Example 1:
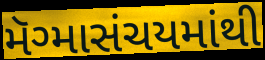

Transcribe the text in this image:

મૅગ્માસંચયમાંથી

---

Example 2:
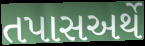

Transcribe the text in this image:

તપાસઅર્થે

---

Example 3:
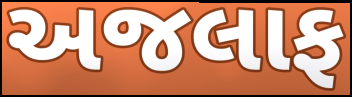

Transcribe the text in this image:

અજલાફ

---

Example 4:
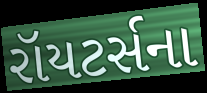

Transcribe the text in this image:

રૉયટર્સના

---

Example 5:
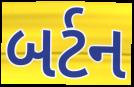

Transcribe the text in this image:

બર્ટન